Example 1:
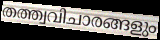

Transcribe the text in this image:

തത്ത്വവിചാരങ്ങളും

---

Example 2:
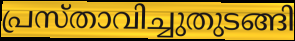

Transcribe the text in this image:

പ്രസ്താവിച്ചുതുടങ്ങി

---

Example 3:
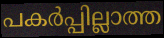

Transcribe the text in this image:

പകർപ്പില്ലാത്ത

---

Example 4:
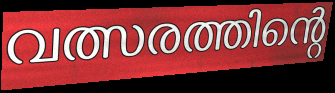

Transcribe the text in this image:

വത്സരത്തിന്റെ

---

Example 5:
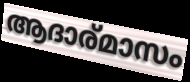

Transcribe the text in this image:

ആദാര്മാസം